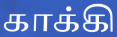
காக்கி